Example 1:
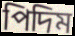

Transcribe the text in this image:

পিদিম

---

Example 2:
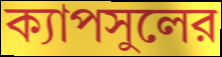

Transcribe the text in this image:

ক্যাপসুলের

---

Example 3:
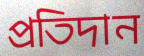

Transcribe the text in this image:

প্রতিদান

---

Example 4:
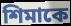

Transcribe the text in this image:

শিমাকে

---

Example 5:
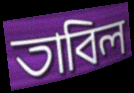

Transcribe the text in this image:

তাবিল